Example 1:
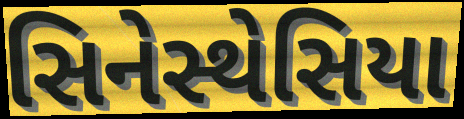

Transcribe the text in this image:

સિનેસ્થેસિયા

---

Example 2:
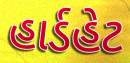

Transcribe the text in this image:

હાર્ડહેટ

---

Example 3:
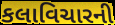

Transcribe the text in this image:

કલાવિચારની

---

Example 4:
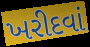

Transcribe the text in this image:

ખરીદવાં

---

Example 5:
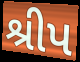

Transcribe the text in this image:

શ્રીપ